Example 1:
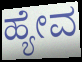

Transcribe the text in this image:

ಹ್ಯೇವ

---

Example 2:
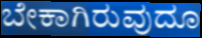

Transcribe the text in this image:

ಬೇಕಾಗಿರುವುದೂ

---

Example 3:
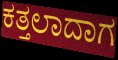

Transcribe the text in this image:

ಕತ್ತಲಾದಾಗ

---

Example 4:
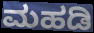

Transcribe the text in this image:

ಮಹಡಿ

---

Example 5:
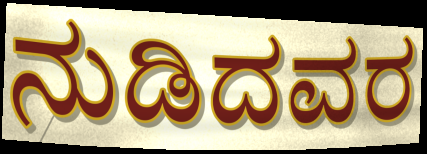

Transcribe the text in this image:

ನುಡಿದವರ